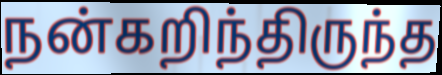
நன்கறிந்திருந்த